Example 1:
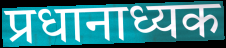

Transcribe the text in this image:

प्रधानाध्यक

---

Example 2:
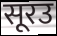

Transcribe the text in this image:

सूरउ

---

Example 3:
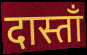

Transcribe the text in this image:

दास्ताँ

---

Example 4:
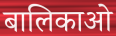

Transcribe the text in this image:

बालिकाओ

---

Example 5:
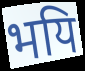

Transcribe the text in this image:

भयि